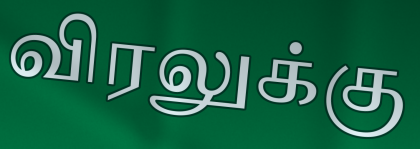
விரலுக்கு